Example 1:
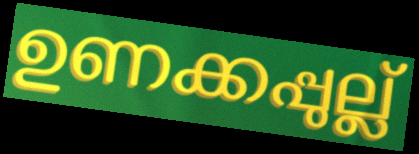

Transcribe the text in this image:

ഉണക്കപ്പുല്ല്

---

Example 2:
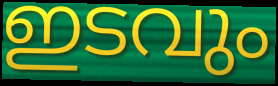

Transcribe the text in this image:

ഇടവും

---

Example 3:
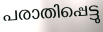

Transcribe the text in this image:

പരാതിപ്പെട്ടു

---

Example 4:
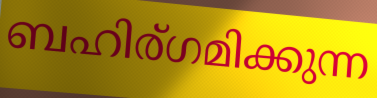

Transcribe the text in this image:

ബഹിര്ഗമിക്കുന്ന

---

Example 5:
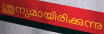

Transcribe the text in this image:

ശൂന്യമായിരിക്കുന്നു